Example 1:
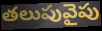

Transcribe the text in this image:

తలుపువైపు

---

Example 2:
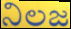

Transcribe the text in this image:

నిలజ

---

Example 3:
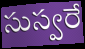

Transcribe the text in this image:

సుస్వరే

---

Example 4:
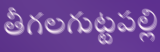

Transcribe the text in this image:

తీగలగుట్టపల్లి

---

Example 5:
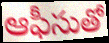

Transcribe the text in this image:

ఆఫీసుతో